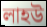
লাহউ